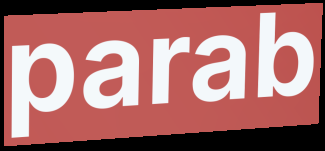
parab